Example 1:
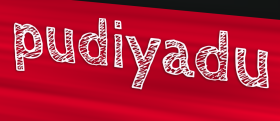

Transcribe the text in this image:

pudiyadu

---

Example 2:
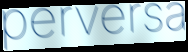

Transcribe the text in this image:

perversa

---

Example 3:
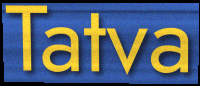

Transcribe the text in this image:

Tatva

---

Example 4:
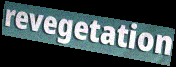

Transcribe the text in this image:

revegetation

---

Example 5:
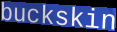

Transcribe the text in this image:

buckskin